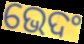
ଭେଦଂ